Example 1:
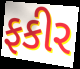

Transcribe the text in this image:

ફકીર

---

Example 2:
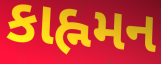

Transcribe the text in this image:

કાહ્નમન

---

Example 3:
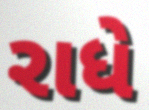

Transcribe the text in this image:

રાધે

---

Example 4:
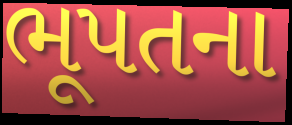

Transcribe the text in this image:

ભૂપતના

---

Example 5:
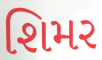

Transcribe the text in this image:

શિમર